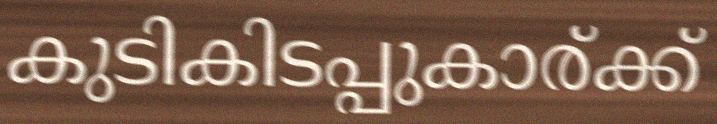
കുടികിടപ്പുകാര്ക്ക്